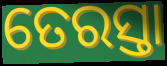
ତେରସ୍ତା